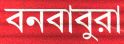
বনবাবুরা